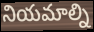
నియమాల్ని